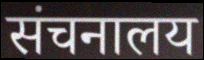
संचनालय